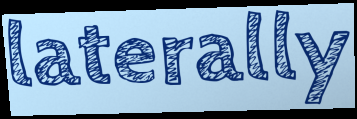
laterally